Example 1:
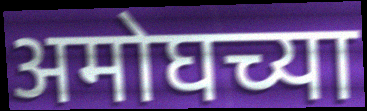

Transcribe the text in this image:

अमोघच्या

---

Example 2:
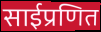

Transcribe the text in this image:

साईप्रणित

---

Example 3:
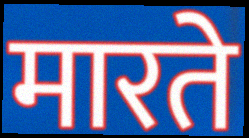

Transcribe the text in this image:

मारते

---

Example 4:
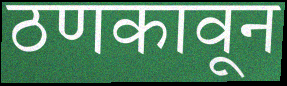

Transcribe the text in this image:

ठणकावून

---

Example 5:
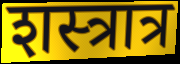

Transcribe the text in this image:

शस्त्रात्र